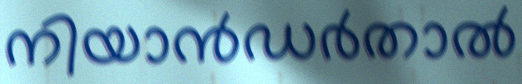
നിയാൻഡർതാൽ